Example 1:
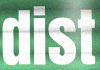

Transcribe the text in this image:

dist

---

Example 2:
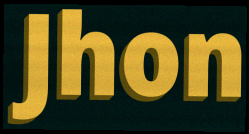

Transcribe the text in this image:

Jhon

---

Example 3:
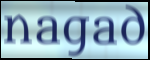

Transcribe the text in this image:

nagad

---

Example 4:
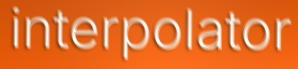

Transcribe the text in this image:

interpolator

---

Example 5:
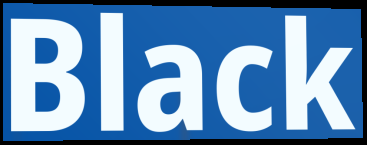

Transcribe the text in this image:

Black